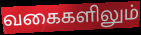
வகைகளிலும்